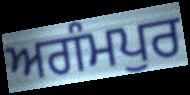
ਅਗੰਮਪੁਰ